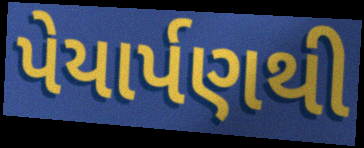
પેયાર્પણથી